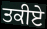
ਤਕੀਏ